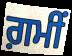
ਗ਼ਮੀਂ